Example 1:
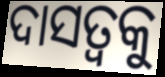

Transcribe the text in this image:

ଦାସତ୍ୱକୁ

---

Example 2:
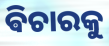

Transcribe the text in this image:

ଵିଚାରକୁ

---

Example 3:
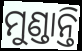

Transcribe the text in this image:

ମୁଣ୍ଡାନ୍ତି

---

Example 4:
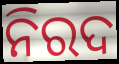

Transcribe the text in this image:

ନିରଦ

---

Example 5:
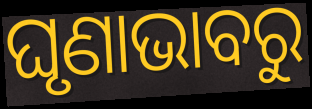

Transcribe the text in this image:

ଘୃଣାଭାବରୁ